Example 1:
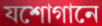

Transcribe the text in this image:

যশোগানে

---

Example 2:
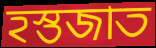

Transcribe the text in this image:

হস্তজাত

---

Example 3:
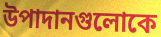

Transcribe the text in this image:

উপাদানগুলোকে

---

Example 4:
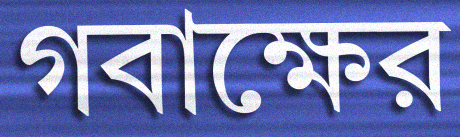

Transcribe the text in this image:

গবাক্ষের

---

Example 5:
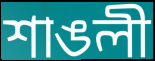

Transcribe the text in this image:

শাঙলী